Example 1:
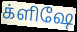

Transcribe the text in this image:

க்ளிஷே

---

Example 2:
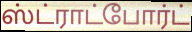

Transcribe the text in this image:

ஸ்ட்ராட்போர்ட்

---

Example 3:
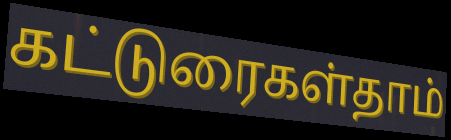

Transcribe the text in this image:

கட்டுரைகள்தாம்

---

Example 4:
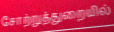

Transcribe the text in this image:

சோற்றுத்துறையில்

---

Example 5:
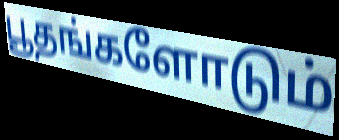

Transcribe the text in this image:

பூதங்களோடும்